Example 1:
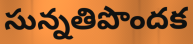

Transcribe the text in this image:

సున్నతిపొందక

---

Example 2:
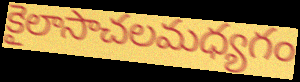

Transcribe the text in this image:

కైలాసాచలమధ్యగం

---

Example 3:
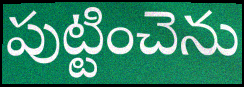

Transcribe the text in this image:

పుట్టించెను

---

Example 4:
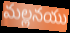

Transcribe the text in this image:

మల్లనయు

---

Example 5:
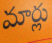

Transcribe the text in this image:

మార్లు